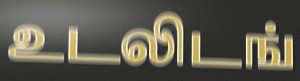
உடலிடங்